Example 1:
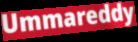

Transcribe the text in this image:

Ummareddy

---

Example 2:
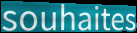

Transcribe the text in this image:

souhaites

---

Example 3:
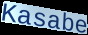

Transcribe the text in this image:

Kasabe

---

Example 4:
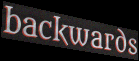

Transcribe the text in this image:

backwards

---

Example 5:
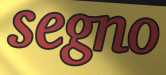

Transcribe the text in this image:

segno